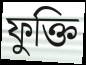
ফুক্তি